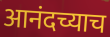
आनंदच्याच